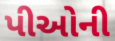
પીઓની